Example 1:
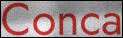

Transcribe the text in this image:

Conca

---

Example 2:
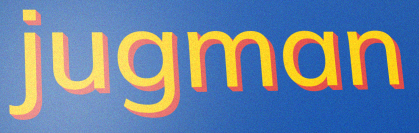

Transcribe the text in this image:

jugman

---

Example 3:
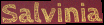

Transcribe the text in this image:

Salvinia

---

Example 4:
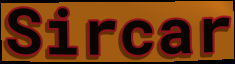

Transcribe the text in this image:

Sircar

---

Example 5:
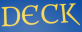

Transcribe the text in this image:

DECK